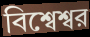
বিশ্বেশ্বর